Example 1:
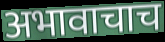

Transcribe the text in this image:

अभावाचाच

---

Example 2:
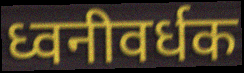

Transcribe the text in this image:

ध्वनीवर्धक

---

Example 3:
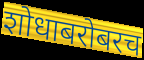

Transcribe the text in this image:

शोधाबरोबरच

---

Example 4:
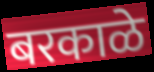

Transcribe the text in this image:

बरकाळे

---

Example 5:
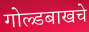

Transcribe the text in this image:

गोल्डबाखचे